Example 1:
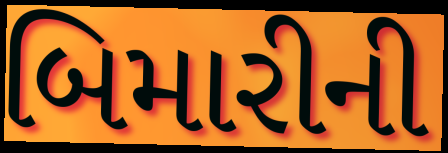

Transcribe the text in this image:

બિમારીની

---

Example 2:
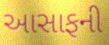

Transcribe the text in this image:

આસાફની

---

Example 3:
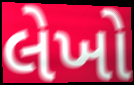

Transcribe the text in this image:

લેખો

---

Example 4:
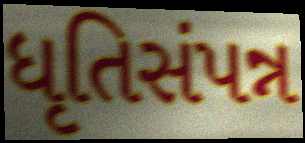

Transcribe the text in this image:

ધૃતિસંપન્ન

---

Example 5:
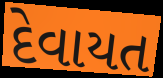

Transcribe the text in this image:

દેવાયત